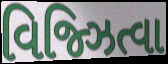
વિજ્ઝિત્વા